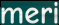
meri